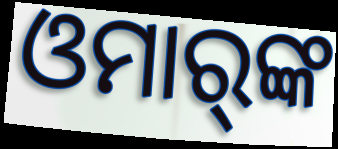
ଓମାର୍‌ଙ୍କ